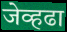
जेव्हढा